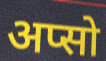
अप्सो